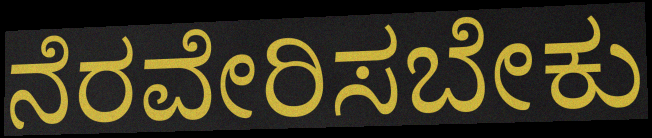
ನೆರವೇರಿಸಬೇಕು